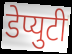
डेप्युटी